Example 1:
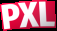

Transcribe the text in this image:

PXL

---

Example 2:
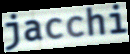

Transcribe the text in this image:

jacchi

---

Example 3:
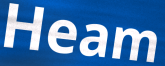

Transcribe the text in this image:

Heam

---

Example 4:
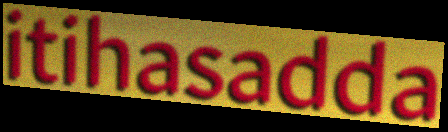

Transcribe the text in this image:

itihasadda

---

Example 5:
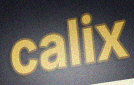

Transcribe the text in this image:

calix